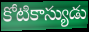
కోటికాస్యుడు